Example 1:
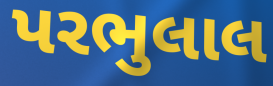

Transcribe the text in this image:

પરભુલાલ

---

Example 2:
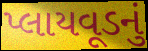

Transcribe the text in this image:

પ્લાયવૂડનું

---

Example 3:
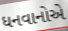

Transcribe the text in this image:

ધનવાનોએ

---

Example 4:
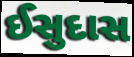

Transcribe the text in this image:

ઈસુદાસ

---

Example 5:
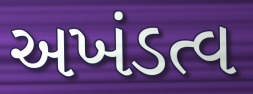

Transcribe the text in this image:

અખંડત્વ